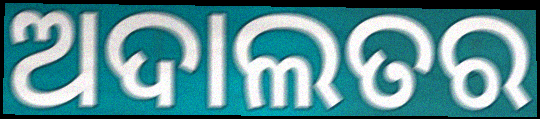
ଅଦାଲତର